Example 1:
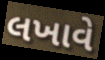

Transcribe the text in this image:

લખાવે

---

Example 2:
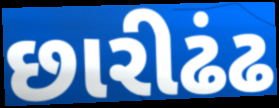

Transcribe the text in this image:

છારીઢંઢ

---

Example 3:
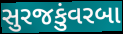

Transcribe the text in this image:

સુરજકુંવરબા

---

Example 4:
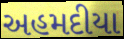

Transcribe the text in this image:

અહમદીયા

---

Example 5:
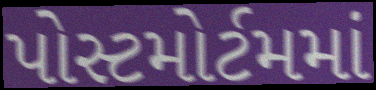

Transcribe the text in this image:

પોસ્ટમોર્ટમમાં